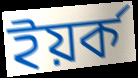
ইয়র্ক